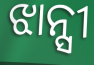
ଝାନ୍ସୀ